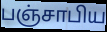
பஞ்சாபிய